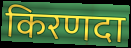
किरणदा